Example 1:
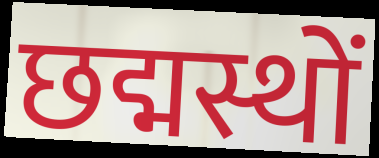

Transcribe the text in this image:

छद्मस्थों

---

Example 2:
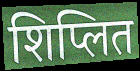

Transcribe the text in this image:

शिप्लित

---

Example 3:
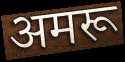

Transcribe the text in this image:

अमरू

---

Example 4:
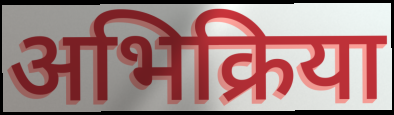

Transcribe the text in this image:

अभिक्रिया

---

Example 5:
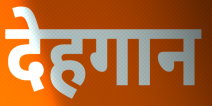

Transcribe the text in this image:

देहगान